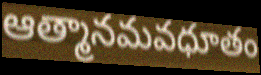
ఆత్మానమవధూతం